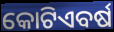
କୋଟିଏବର୍ଷ